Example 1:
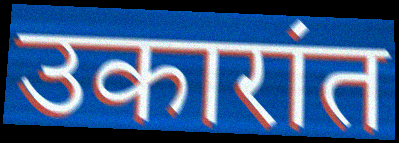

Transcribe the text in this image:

उकारांत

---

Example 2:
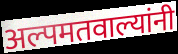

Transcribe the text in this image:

अल्पमतवाल्यांनी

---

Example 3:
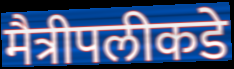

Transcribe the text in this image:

मैत्रीपलीकडे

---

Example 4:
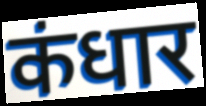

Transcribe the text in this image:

कंधार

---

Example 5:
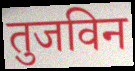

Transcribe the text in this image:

तुजविन